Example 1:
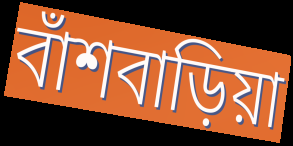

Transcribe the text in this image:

বাঁশবাড়িয়া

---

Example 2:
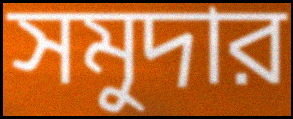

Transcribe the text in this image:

সমুদার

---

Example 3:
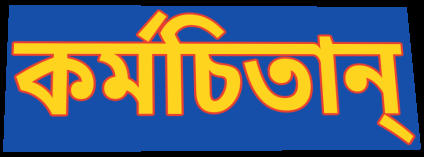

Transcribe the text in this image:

কর্মচিতান্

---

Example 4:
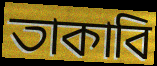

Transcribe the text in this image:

তাকাবি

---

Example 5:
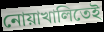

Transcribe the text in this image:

নোয়াখালিতেই